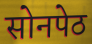
सोनपेठ